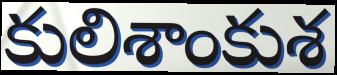
కులిశాంకుశ